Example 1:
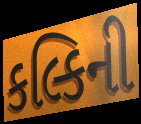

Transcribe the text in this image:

કલ્કિની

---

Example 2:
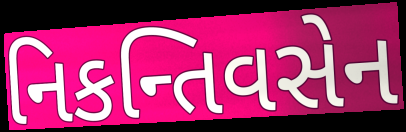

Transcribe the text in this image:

નિકન્તિવસેન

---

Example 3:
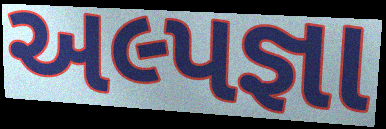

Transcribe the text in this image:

અલ્પજ્ઞા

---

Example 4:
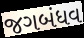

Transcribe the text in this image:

જગબંધવ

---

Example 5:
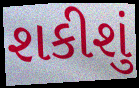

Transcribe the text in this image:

શકીશું